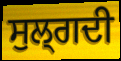
ਸੁਲ੍ਗਦੀ